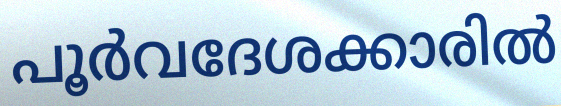
പൂർവദേശക്കാരിൽ